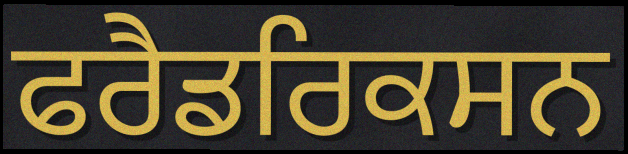
ਫਰੈਡਰਿਕਸਨ